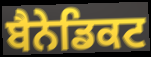
ਬੈਨੇਡਿਕਟ